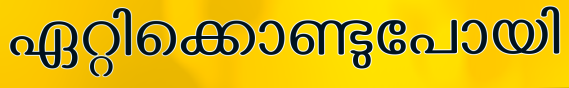
ഏറ്റിക്കൊണ്ടുപോയി